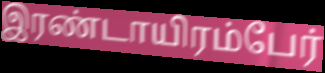
இரண்டாயிரம்பேர்